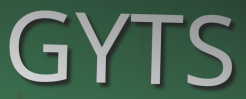
GYTS